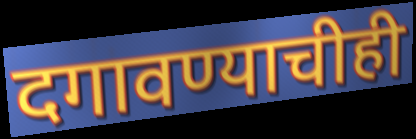
दगावण्याचीही